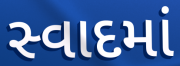
સ્વાદમાં